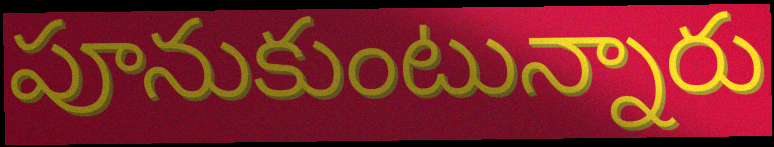
పూనుకుంటున్నారు